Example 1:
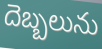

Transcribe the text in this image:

దెబ్బలును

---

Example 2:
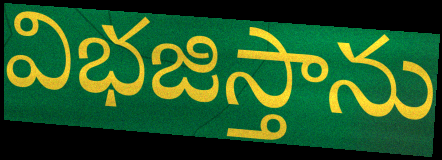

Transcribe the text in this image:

విభజిస్తాను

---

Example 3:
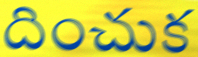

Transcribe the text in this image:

దించుక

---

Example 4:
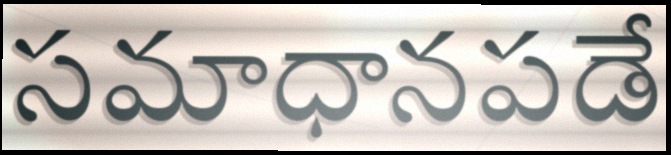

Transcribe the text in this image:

సమాధానపడే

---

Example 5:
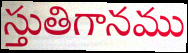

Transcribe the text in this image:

స్తుతిగానము